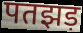
पतझड़